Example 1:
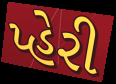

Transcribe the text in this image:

પ્હેરી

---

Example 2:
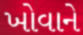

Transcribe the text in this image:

ખોવાને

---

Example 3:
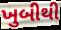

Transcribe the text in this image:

ખુબીથી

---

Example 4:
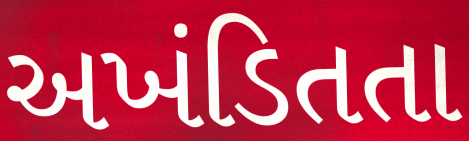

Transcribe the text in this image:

અખંડિતતા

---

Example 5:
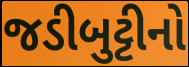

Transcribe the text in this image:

જડીબુટ્ટીનો